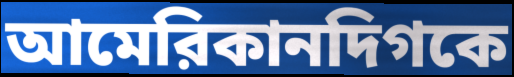
আমেরিকানদিগকে